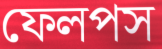
ফেলপস